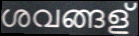
ശവങ്ങള്